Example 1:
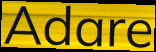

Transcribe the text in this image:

Adare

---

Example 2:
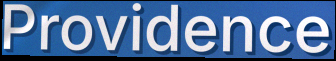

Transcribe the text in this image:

Providence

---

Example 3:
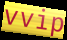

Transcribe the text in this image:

vvip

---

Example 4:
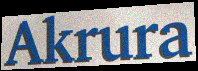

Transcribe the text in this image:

Akrura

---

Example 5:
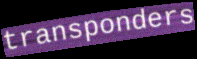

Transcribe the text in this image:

transponders